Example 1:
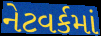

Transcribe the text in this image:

નેટવર્કમાં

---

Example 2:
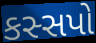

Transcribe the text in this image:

કસ્સપો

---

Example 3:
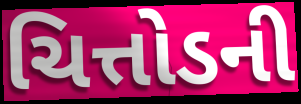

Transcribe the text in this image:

ચિત્તોડની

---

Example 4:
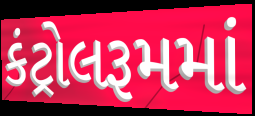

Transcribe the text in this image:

કંટ્રોલરૂમમાં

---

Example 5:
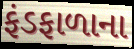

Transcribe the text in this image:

ફંડફાળાના